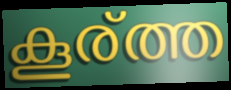
കൂര്ത്ത